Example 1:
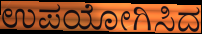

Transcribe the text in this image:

ಉಪಯೋಗಿಸಿದ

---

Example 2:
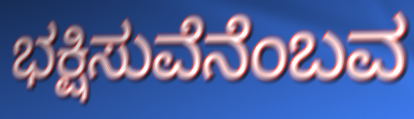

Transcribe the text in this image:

ಭಕ್ಷಿಸುವೆನೆಂಬವ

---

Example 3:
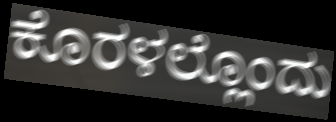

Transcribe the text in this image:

ಕೊರಳಲ್ಲೊಂದು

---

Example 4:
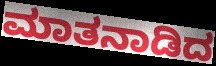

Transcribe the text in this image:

ಮಾತನಾಡಿದ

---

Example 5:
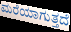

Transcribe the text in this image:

ಮರೆಯಾಗುತ್ತದೆ